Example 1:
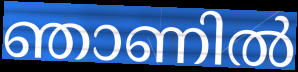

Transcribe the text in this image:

ഞാണിൽ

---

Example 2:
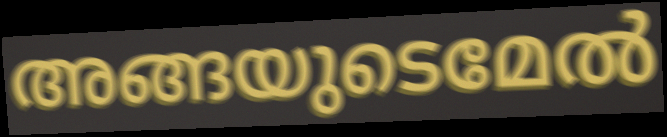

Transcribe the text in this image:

അങ്ങയുടെമേൽ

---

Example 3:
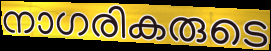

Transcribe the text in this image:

നാഗരികരുടെ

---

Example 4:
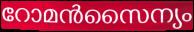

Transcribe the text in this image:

റോമൻസൈന്യം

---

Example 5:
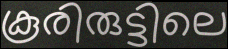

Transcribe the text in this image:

കൂരിരുട്ടിലെ